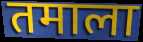
तमाला